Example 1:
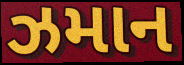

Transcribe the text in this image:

ઝમાન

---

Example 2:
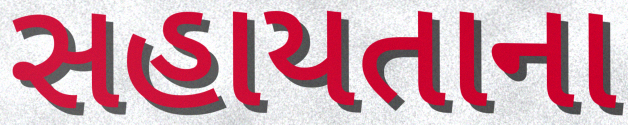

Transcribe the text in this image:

સહાયતાના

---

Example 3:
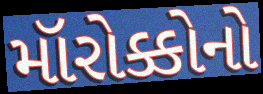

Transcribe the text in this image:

મૉરોક્કોનો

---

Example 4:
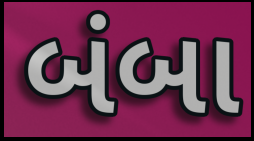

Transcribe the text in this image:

બંબા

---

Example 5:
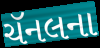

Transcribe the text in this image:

ચૅનલના